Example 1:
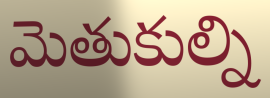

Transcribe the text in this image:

మెతుకుల్ని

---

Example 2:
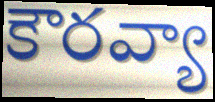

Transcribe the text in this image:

కౌరవ్యా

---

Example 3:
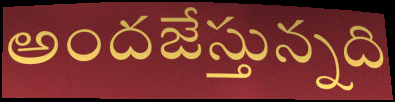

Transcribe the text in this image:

అందజేస్తున్నది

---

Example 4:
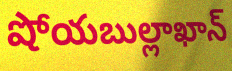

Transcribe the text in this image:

షోయబుల్లాఖాన్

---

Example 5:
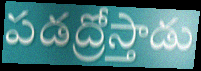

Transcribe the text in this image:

పడద్రోస్తాడు